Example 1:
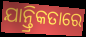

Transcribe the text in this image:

ଯାନ୍ତ୍ରିକତାରେ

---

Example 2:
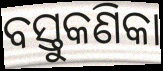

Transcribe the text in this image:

ବସ୍ତୁକଣିକା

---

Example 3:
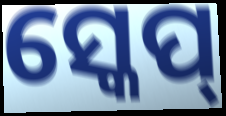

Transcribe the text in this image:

ସ୍କେପ୍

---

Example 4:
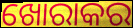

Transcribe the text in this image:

ଖୋରାକର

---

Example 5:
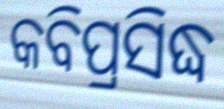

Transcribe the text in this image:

କବିପ୍ରସିଦ୍ଧ